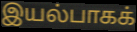
இயல்பாகக்